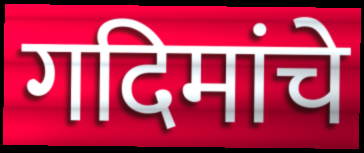
गदिमांचे